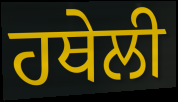
ਹਥੇਲੀ